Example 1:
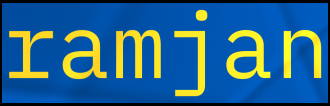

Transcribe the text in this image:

ramjan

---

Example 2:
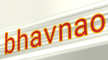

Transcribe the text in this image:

bhavnao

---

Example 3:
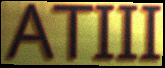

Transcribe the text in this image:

ATIII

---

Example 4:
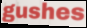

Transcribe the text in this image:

gushes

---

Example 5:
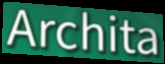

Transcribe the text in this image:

Archita